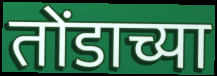
तोंडाच्या